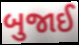
બુજાઈ